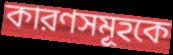
কারণসমূহকে